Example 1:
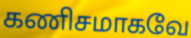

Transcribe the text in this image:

கணிசமாகவே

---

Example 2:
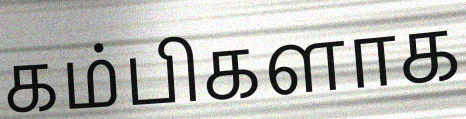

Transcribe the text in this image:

கம்பிகளாக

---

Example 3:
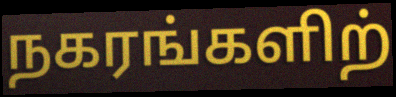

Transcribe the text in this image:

நகரங்களிற்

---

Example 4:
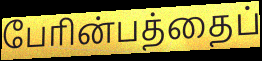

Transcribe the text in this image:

பேரின்பத்தைப்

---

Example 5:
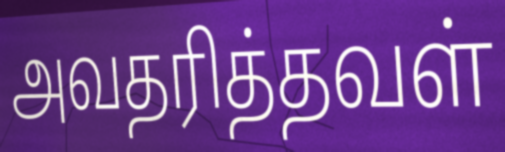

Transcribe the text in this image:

அவதரித்தவள்